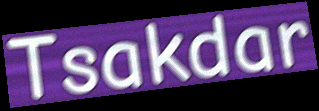
Tsakdar